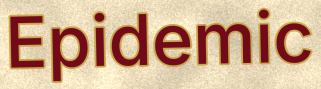
Epidemic